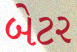
બેટર